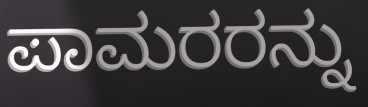
ಪಾಮರರನ್ನು